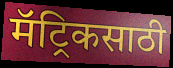
मॅट्रिकसाठी